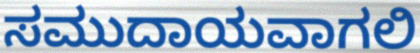
ಸಮುದಾಯವಾಗಲಿ